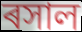
ৰসাল